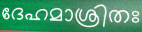
ദേഹമാശ്രിതഃ